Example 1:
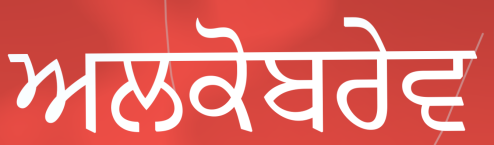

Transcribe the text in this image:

ਅਲਕੋਬਰੇਵ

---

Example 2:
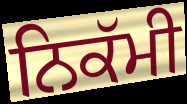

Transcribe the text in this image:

ਨਿਕੱਮੀ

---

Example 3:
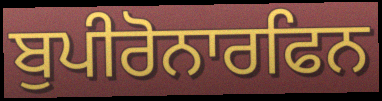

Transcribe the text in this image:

ਬੁਪੀਰੋਨਾਰਫਿਨ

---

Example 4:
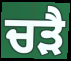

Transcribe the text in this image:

ਚੜੈ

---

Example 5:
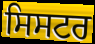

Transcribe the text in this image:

ਸਿਸਟਰ